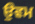
ਉਵਮ